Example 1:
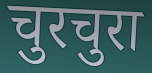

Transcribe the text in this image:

चुरचुरा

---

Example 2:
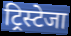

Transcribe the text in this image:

ट्रिस्टेजा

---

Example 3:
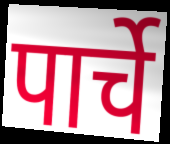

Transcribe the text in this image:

पार्चे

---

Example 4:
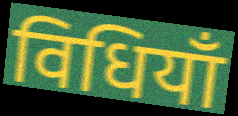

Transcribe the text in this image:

विधियाँ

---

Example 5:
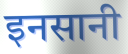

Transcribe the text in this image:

इनसानी